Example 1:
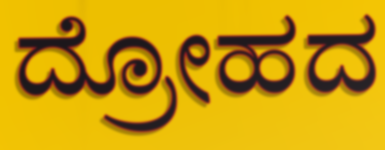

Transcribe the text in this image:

ದ್ರೋಹದ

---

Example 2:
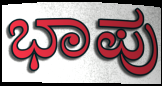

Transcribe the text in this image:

ಭಾಪು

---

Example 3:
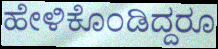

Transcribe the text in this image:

ಹೇಳಿಕೊಂಡಿದ್ದರೂ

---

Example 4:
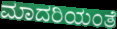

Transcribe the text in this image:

ಮಾದರಿಯಂತೆ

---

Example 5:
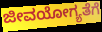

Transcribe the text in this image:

ಜೀವಯೋಗ್ಯತೆಗೆ